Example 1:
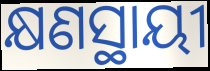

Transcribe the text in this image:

କ୍ଷଣସ୍ଥାୟୀ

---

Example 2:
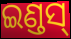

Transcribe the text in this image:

ଇଣ୍ଡସ୍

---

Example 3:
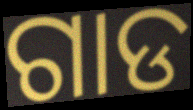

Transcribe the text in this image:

ଗାଡ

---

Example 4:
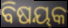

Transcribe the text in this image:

ବିଷୟକ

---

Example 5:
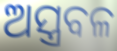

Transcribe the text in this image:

ଅସ୍ତ୍ରବଳ